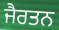
ਜੈਰਤਨ